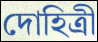
দোহিত্রী